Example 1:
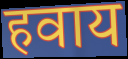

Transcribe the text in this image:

हवाय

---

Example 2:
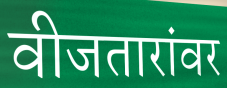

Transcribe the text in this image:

वीजतारांवर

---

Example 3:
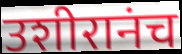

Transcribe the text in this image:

उशीरानंच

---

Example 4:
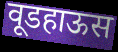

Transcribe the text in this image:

वूडहाऊस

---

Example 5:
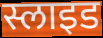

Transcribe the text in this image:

स्लाइड